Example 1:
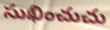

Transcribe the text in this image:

సుఖించుచు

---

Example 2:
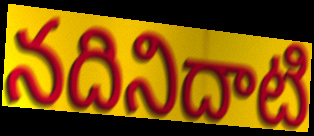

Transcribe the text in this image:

నదినిదాటి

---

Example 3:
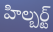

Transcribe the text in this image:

హిల్బర్ట్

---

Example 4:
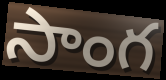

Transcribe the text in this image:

సాంగ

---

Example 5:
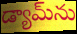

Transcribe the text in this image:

డ్యామ్‌ను